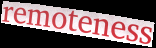
remoteness